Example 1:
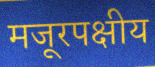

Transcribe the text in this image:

मजूरपक्षीय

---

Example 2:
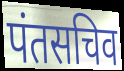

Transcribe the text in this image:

पंतसचिव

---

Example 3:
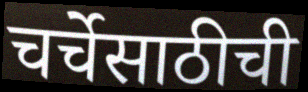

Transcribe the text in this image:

चर्चेसाठीची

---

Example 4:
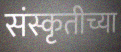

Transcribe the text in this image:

संस्कृतीच्या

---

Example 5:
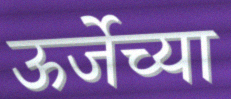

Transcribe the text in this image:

ऊर्जेच्या